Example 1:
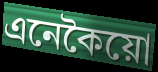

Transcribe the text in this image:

এনেকৈয়ো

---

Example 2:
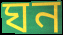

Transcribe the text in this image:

ঘন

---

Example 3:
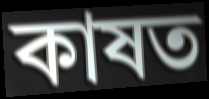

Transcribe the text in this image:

কাষত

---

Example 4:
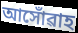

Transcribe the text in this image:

আসোঁৱাহ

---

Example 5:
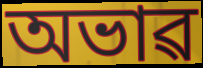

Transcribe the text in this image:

অভাৱ